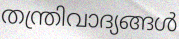
തന്ത്രിവാദ്യങ്ങൾ